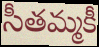
సీతమ్మకీ